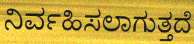
ನಿರ್ವಹಿಸಲಾಗುತ್ತದೆ